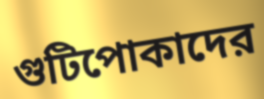
গুটিপোকাদের